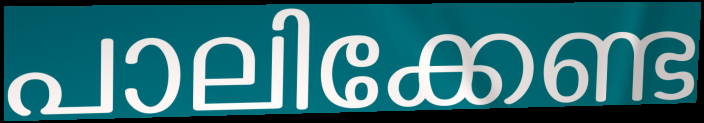
പാലിക്കേണ്ട